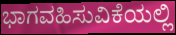
ಭಾಗವಹಿಸುವಿಕೆಯಲ್ಲಿ